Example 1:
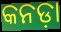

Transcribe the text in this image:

କନଡ଼ା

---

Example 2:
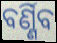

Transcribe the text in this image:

ବର୍ଣ୍ଣିବ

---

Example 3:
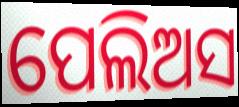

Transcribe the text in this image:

ପେଲିଅସ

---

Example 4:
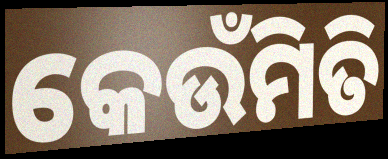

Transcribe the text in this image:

କେଉଁମିତି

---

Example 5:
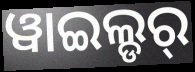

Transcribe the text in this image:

ୱାଇଲ୍ଡର୍